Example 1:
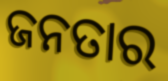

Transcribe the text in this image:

ଜନତାର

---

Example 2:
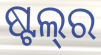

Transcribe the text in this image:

ଷ୍ଟଲ୍‌ର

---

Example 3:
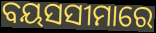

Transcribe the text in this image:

ବୟସସୀମାରେ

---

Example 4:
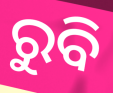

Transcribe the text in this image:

ରୁବି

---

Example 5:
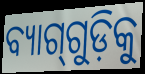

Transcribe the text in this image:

ବ୍ୟାଗ୍‍ଗୁଡ଼ିକୁ